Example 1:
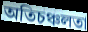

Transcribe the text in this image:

অতিচঞ্চলতা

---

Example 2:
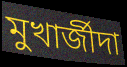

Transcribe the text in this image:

মুখার্জীদা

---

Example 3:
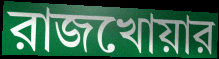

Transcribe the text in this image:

রাজখোয়ার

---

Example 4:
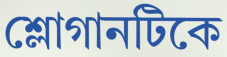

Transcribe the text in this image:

শ্লোগানটিকে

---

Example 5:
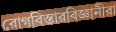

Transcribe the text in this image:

রোগবিস্তারবিজ্ঞানীরা